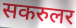
सकरुलर